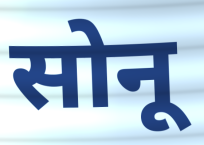
सोनू